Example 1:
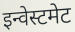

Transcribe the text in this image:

इन्वेस्टमेट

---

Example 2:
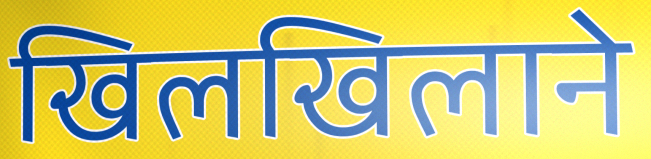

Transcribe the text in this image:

खिलखिलाने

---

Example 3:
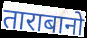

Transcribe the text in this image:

ताराबानो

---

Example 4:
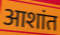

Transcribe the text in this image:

आशांत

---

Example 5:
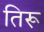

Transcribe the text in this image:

तिरू